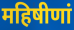
महिषीणां